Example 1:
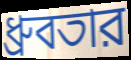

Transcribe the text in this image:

ধ্রুবতার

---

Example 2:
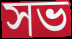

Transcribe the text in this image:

সভ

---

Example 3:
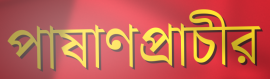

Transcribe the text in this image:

পাষাণপ্রাচীর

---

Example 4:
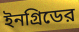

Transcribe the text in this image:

ইনগ্রিডের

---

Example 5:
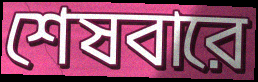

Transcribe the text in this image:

শেষবারে